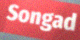
Songad